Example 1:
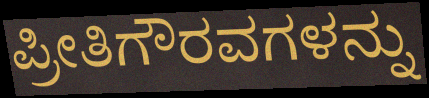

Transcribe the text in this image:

ಪ್ರೀತಿಗೌರವಗಳನ್ನು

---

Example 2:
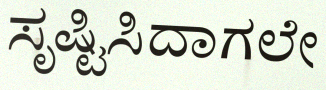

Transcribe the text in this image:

ಸೃಷ್ಟಿಸಿದಾಗಲೇ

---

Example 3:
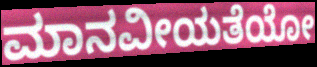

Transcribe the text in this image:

ಮಾನವೀಯತೆಯೋ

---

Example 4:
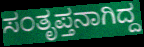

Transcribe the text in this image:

ಸಂತೃಪ್ತನಾಗಿದ್ದ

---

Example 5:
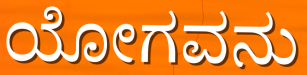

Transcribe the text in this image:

ಯೋಗವನು